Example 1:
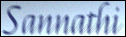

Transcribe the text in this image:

Sannathi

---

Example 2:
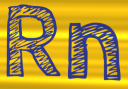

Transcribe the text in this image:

Rn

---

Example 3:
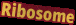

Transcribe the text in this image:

Ribosome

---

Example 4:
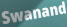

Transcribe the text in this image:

Swanand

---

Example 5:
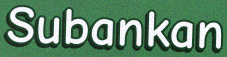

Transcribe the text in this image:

Subankan